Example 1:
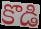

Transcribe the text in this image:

కొడి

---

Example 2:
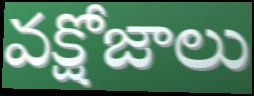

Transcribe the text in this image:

వక్షోజాలు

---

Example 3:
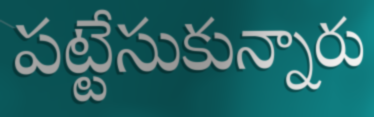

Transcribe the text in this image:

పట్టేసుకున్నారు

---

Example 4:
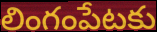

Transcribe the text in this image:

లింగంపేటకు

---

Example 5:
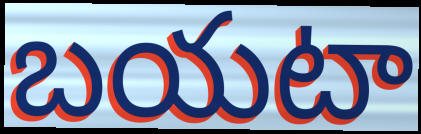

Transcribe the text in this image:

బయటా